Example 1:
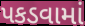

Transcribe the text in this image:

પકડવામાં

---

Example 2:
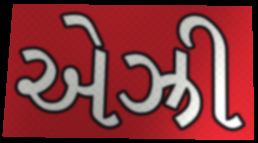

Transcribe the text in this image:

એઝ્રી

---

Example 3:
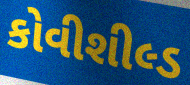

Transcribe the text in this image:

કોવીશીલ્ડ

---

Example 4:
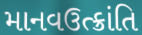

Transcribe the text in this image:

માનવઉત્ક્રાંતિ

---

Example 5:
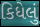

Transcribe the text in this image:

કિધેલું